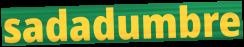
sadadumbre